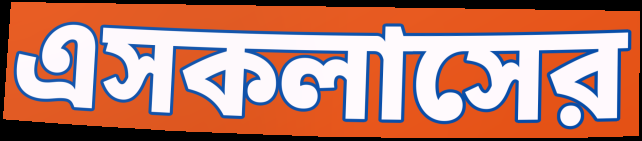
এসকলাসের